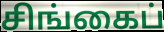
சிங்கைப்